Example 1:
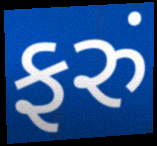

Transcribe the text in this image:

ફરું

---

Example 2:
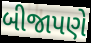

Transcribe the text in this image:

બીજાપણે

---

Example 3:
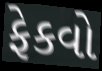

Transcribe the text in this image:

ફેકવો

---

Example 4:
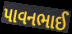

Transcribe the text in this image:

પાવનભાઈ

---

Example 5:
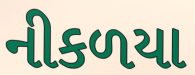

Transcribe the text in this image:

નીકળયા